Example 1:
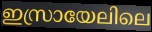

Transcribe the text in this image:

ഇസ്രായേലിലെ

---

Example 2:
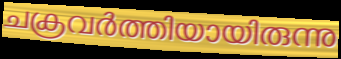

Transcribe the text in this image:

ചക്രവർത്തിയായിരുന്നു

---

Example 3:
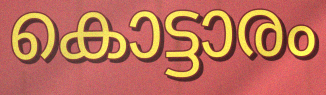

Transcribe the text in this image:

കൊട്ടാരം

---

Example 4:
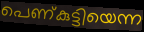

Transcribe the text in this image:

പെണ്കുട്ടിയെന്ന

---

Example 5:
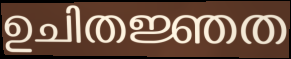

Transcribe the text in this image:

ഉചിതജ്ഞത